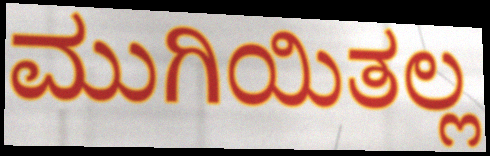
ಮುಗಿಯಿತಲ್ಲ